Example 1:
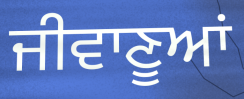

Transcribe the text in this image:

ਜੀਵਾਣੂਆਂ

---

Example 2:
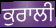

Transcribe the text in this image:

ਕੁਰਾਲੀ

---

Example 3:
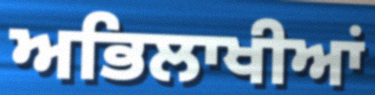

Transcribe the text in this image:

ਅਭਿਲਾਖੀਆਂ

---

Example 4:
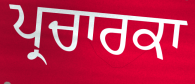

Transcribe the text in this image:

ਪ੍ਰਚਾਰਕਾ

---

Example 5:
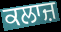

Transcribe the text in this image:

ਕਲਾਜ਼